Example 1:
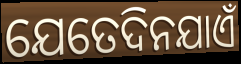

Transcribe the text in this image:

ଯେତେଦିନଯାଏଁ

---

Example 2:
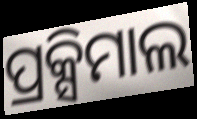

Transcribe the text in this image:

ପ୍ରକ୍ସିମାଲ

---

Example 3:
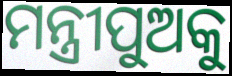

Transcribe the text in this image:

ମନ୍ତ୍ରୀପୁଅକୁ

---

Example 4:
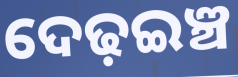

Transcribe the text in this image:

ଦେଢ଼ଇଞ୍ଚ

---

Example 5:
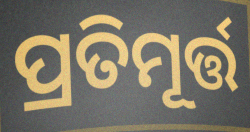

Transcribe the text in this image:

ପ୍ରତିମୂର୍ତ୍ତ